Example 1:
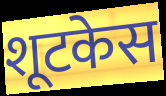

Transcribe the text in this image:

शूटकेस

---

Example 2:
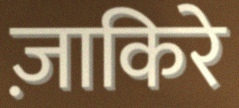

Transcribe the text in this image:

ज़ाकिरे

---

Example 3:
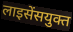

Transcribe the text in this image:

लाइसेंसयुक्त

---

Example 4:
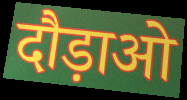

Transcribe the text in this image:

दौड़ाओ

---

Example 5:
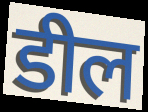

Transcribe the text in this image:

डील